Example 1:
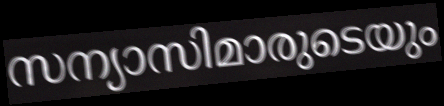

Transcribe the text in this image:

സന്യാസിമാരുടെയും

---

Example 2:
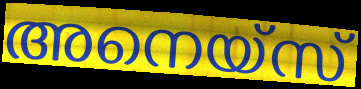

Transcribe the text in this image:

അനെയ്സ്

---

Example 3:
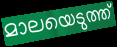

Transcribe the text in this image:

മാലയെടുത്ത്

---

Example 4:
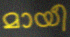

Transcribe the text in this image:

മായീ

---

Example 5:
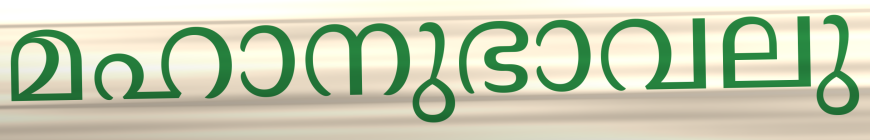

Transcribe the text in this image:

മഹാനുഭാവലു